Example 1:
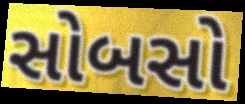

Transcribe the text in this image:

સોબસો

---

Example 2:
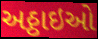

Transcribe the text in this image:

અઠ્ઠાઇઓ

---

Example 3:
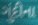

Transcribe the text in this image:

ગુંદીના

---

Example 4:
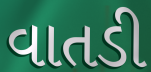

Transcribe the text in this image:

વાતડી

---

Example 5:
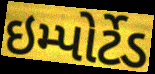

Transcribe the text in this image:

ઇમ્પોર્ટેડ